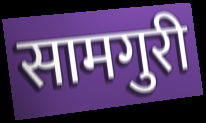
सामगुरी